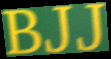
BJJ